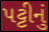
પટ્ટીનું